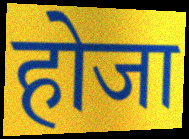
होजा